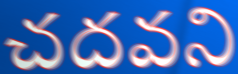
చదవని